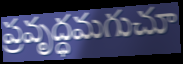
ప్రవృద్ధమగుచూ